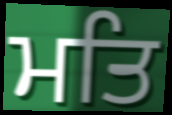
ਮਤਿ